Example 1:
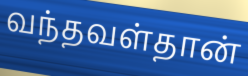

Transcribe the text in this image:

வந்தவள்தான்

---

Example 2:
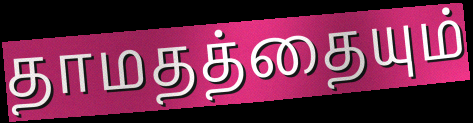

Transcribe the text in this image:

தாமதத்தையும்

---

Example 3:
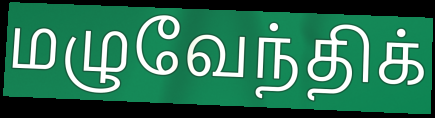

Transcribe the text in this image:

மழுவேந்திக்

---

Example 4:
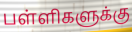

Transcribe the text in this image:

பள்ளிகளுக்கு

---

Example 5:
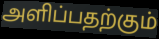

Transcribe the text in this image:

அளிப்பதற்கும்